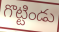
గొట్టిండు